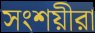
সংশয়ীরা